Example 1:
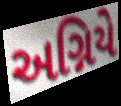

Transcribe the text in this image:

અગ્નિયે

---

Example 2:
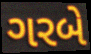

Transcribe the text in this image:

ગરબે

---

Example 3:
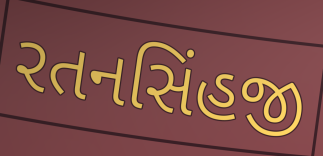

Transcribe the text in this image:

રતનસિંહજી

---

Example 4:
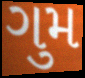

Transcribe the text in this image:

ગુમ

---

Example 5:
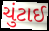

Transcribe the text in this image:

ચુંટાઈ